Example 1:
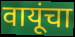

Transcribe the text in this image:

वायूंचा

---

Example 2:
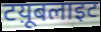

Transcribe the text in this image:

टय़ूबलाइट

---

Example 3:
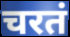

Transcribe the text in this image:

चरतं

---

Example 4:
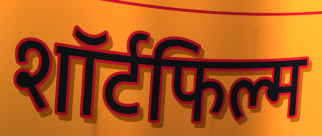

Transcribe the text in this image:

शॉर्टफिल्म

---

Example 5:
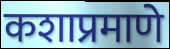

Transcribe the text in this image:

कशाप्रमाणे